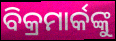
ବିକ୍ରମାର୍କଙ୍କୁ